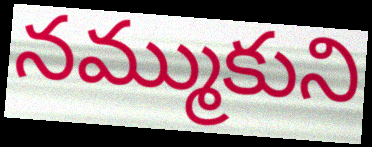
నమ్ముకుని